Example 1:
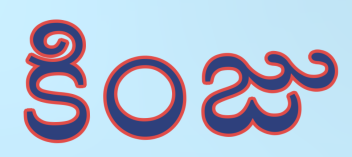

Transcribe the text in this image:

కింజు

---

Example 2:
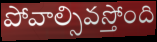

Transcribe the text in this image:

పోవాల్సివస్తోంది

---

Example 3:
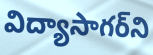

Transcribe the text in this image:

విద్యాసాగర్‌ని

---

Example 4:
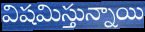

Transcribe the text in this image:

విషమిస్తున్నాయి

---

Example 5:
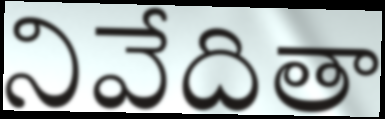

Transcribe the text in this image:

నివేదితా